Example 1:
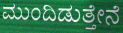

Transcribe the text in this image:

ಮುಂದಿಡುತ್ತೇನೆ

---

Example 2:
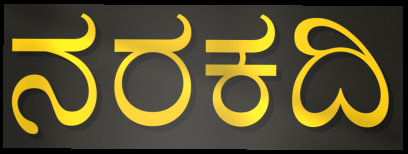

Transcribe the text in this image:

ನರಕದಿ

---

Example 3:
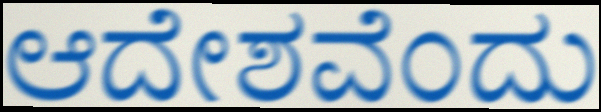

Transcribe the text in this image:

ಆದೇಶವೆಂದು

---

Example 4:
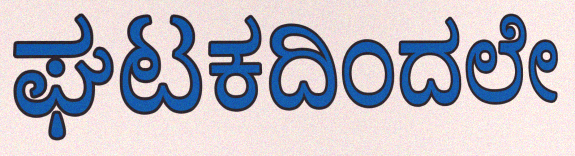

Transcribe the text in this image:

ಘಟಕದಿಂದಲೇ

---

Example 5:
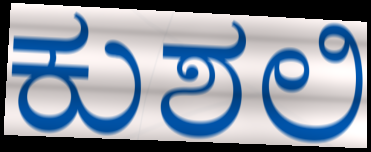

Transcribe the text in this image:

ಕುಶಲಿ